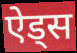
ऐड्स